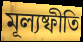
মূল্যষ্ফীতি